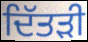
ਦਿੱਤੜੀ